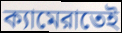
ক্যামেরাতেই